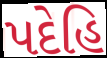
પદેહિ